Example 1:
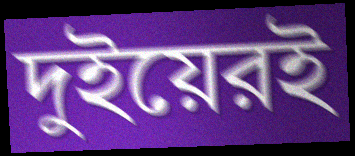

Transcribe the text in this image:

দুইয়েরই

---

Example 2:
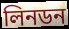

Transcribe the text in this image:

লিনডন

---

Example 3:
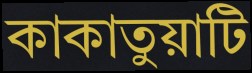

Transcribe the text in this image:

কাকাতুয়াটি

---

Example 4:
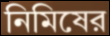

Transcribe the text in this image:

নিমিষের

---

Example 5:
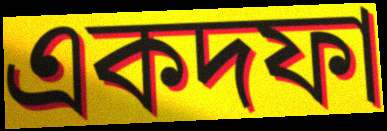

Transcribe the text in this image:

একদফা